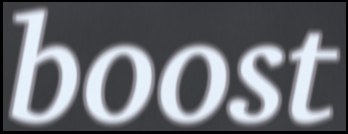
boost